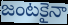
జంటకైనా